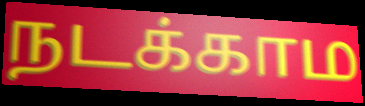
நடக்காம